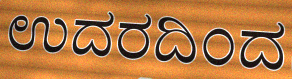
ಉದರದಿಂದ